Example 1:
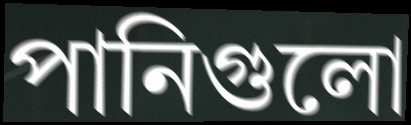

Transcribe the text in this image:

পানিগুলো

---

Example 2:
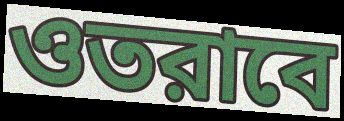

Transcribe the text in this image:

ওতরাবে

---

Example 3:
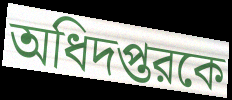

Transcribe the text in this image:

অধিদপ্তরকে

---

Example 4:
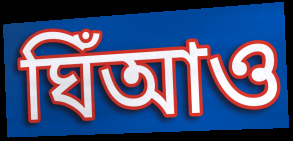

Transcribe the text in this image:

ঘিঁআও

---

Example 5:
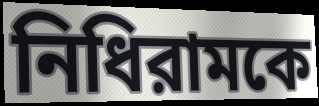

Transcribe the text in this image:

নিধিরামকে